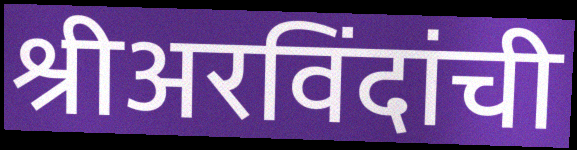
श्रीअरविंदांची